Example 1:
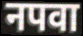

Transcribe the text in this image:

नपवा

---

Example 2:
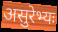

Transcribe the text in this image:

असुरेभ्यः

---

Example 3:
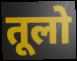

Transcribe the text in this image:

तूलो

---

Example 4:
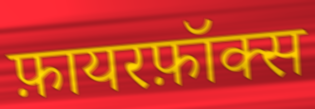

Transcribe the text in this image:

फ़ायरफ़ॉक्स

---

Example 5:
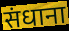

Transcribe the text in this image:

संधाना